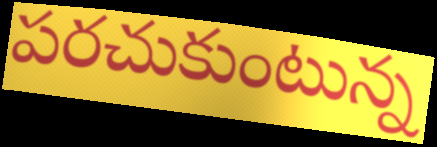
పరచుకుంటున్న